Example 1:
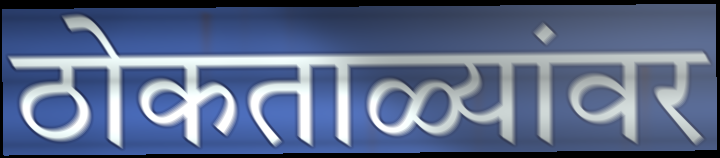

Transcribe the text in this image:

ठोकताळ्यांवर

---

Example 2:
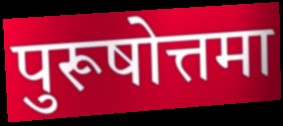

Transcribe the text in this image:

पुरूषोत्तमा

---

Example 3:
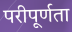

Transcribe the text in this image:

परीपूर्णता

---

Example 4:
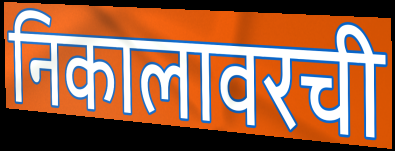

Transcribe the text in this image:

निकालावरची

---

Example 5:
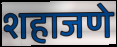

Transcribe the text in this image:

शहाजणे